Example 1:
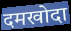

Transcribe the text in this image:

दमखोदा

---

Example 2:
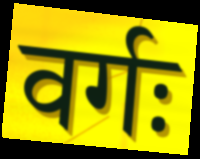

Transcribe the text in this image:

वर्गः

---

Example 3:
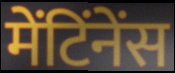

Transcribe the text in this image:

मेंटिंनेंस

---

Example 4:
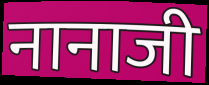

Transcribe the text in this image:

नानाजी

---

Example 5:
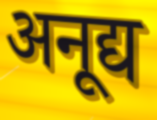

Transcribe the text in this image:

अनूद्य